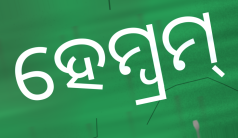
ହେମ୍ବ୍ରମ୍